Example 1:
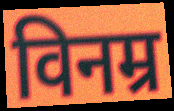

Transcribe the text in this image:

विनम्र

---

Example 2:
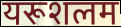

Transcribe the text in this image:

यरूशलम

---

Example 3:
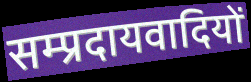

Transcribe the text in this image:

सम्प्रदायवादियों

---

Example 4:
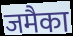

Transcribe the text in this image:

जमैका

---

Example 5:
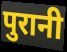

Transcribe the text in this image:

पुरानी